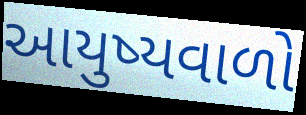
આયુષ્યવાળો